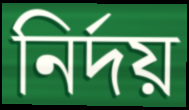
নির্দয়